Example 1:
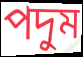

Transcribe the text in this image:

পদুম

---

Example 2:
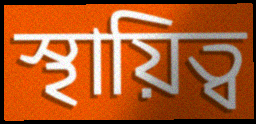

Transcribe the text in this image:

স্থায়িত্ব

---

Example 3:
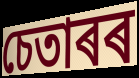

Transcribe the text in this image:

চেতাৰৰ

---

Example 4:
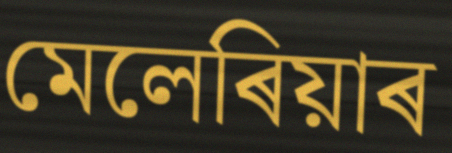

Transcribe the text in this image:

মেলেৰিয়াৰ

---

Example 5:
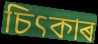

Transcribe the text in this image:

চিৎকাৰ